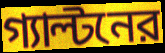
গ্যাল্টনের